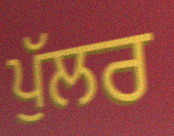
ਪੁੱਲਰ